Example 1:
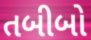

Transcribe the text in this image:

તબીબો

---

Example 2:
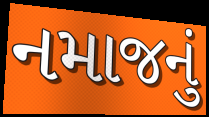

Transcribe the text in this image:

નમાજનું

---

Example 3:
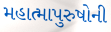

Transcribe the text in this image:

મહાત્માપુરુષોની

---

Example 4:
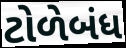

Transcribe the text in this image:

ટોળેબંધ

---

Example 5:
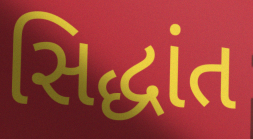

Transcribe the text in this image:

સિદ્ધાંત